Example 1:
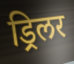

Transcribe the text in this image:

ड्रिलर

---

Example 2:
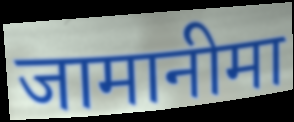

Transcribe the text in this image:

जामानीमा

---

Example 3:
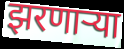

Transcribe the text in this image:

झरणाऱ्या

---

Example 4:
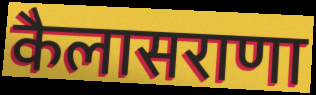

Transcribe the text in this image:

कैलासराणा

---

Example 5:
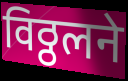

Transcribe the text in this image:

विठ्ठलने